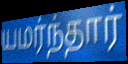
யமர்ந்தார்